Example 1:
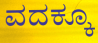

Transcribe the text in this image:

ವದಕ್ಕೂ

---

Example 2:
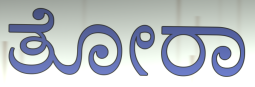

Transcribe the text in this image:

ತೋರಾ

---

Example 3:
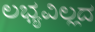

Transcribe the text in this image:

ಲಭ್ಯವಿಲ್ಲದ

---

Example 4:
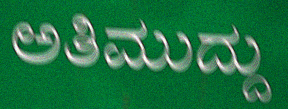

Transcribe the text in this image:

ಅತಿಮುದ್ದು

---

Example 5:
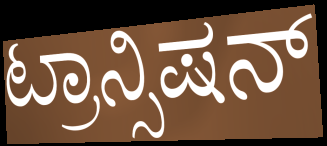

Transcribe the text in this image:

ಟ್ರಾನ್ಸಿಷನ್